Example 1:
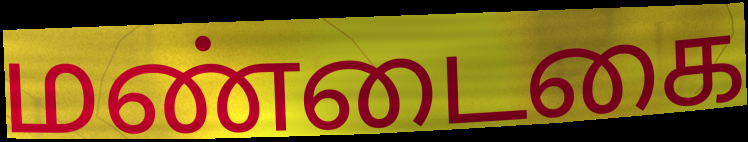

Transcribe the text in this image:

மண்டைகை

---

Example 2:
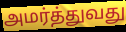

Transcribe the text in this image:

அமர்த்துவது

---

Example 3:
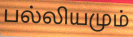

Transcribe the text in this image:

பல்லியமும்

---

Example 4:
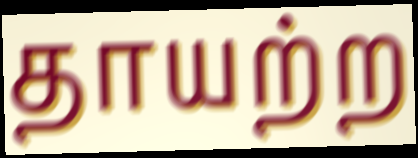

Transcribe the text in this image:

தாயற்ற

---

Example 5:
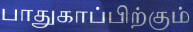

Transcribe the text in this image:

பாதுகாப்பிற்கும்